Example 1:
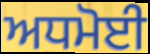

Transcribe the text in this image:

ਅਧਮੋਈ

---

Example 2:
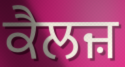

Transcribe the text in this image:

ਕੈਲਜ਼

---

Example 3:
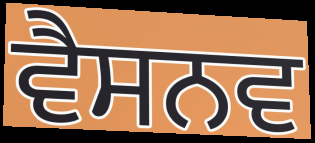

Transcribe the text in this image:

ਵੈਸਨਵ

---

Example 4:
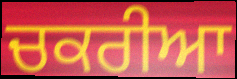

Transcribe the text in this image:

ਚਕਰੀਆ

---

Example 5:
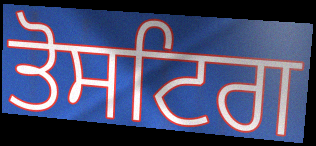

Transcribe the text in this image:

ਤੋਸਟਿਗ